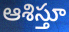
ఆశిస్తూ